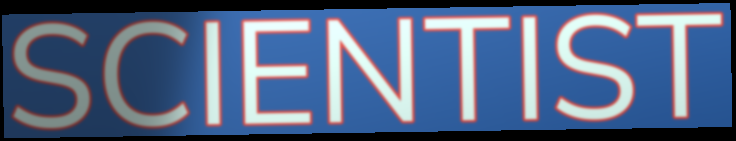
SCIENTIST